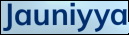
Jauniyya